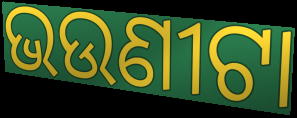
ଭଉଣୀଟା